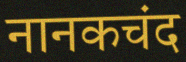
नानकचंद